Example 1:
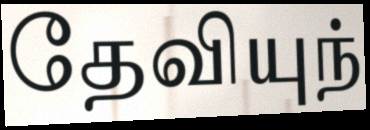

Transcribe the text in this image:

தேவியுந்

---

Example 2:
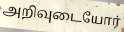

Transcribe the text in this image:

அறிவுடையோர்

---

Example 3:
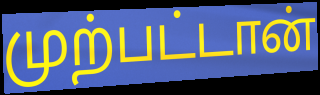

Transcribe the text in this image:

முற்பட்டான்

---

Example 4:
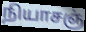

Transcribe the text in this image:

நியாசஞ்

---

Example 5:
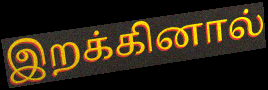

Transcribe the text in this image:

இறக்கினால்